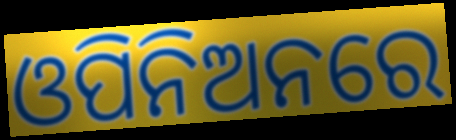
ଓପିନିଅନରେ